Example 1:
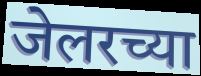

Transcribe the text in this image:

जेलरच्या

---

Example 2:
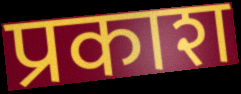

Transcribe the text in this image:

प्रकाश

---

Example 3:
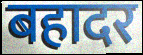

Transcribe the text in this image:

बहादर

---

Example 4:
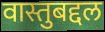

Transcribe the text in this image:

वास्तुबद्दल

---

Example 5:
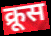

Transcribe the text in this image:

क्रूस